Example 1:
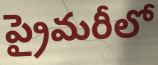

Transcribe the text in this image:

ప్రైమరీలో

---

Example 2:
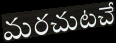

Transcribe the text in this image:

మరచుటచే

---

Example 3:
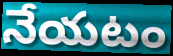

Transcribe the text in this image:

నేయటం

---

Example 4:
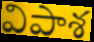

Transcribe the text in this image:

విపాశ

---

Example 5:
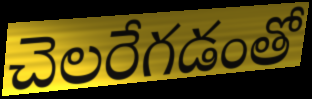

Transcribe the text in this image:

చెలరేగడంతో